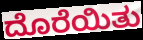
ದೊರೆಯಿತು